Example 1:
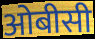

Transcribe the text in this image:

ओबीसी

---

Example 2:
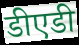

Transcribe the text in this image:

डीएडी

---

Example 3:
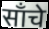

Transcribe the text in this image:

साँचे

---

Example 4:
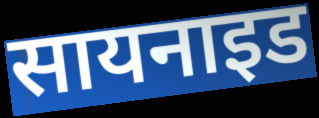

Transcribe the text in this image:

सायनाइड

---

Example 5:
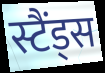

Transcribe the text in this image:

स्टैंड्स